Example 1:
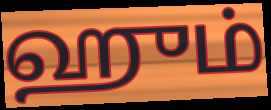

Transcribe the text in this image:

ஹும்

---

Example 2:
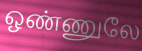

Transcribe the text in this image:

ஒண்ணுலே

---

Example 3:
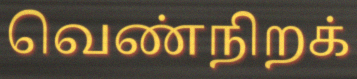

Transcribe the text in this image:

வெண்நிறக்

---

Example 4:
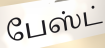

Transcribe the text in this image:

பேஸ்ட்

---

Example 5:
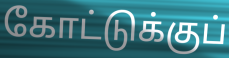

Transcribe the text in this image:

கோட்டுக்குப்